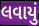
લવાયું